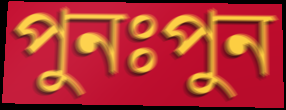
পুনঃপুন